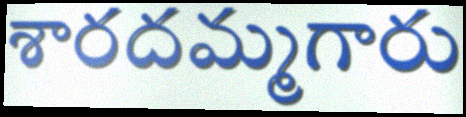
శారదమ్మగారు